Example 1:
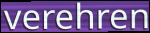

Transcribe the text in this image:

verehren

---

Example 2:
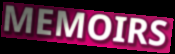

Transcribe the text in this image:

MEMOIRS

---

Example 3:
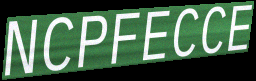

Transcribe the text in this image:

NCPFECCE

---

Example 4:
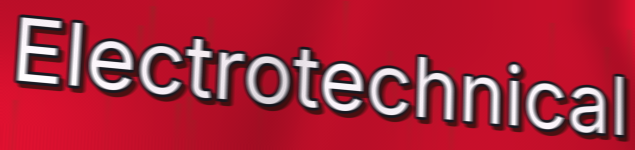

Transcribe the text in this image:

Electrotechnical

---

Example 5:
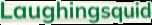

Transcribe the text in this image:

Laughingsquid